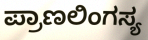
ಪ್ರಾಣಲಿಂಗಸ್ಯ